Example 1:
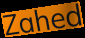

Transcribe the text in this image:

Zahed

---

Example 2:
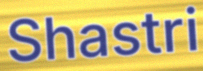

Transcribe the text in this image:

Shastri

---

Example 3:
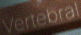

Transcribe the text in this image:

Vertebral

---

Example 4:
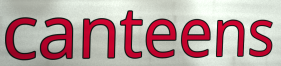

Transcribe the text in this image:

canteens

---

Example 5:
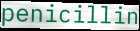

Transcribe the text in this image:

penicillin